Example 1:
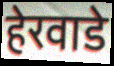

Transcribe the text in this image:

हेरवाडे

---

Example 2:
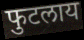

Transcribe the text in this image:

फुटलाय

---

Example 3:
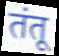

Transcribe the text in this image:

तंतू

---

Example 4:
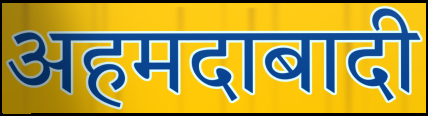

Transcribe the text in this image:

अहमदाबादी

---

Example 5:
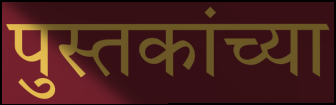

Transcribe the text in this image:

पुस्तकांच्या